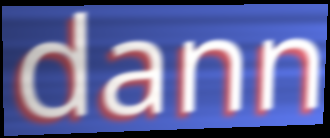
dann